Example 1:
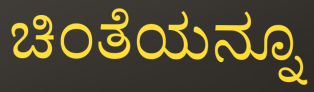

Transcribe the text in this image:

ಚಿಂತೆಯನ್ನೂ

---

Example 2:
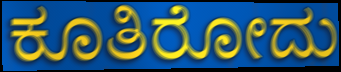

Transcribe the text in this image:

ಕೂತಿರೋದು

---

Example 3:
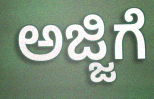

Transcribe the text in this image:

ಅಜ್ಜಿಗೆ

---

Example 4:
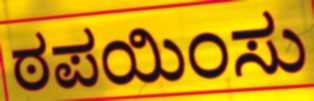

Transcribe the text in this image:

ಠಪಯಿಂಸು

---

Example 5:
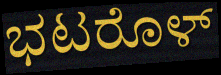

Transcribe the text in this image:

ಭಟರೊಳ್